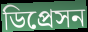
ডিপ্রেসন